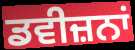
ਡਵੀਜ਼ਨਾਂ